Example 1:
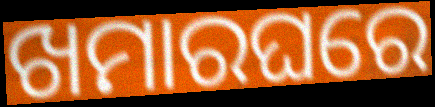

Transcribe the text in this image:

ଖମାରଘରେ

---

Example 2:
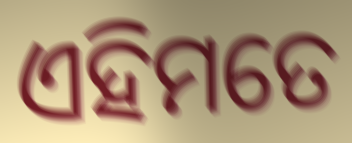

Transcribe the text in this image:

ଏହିମତେ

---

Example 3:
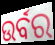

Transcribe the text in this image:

ଉର୍ବର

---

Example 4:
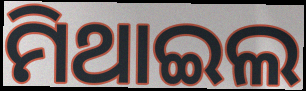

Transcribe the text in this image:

ମିଥାଇଲ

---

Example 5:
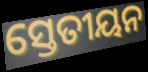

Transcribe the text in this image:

ସ୍ତେତୀୟନ